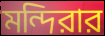
মন্দিরার